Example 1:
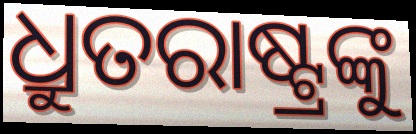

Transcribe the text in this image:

ଧ୍ରୁତରାଷ୍ଟ୍ରଙ୍କୁ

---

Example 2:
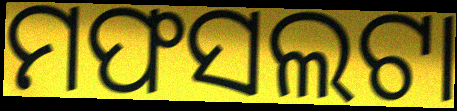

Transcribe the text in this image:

ମଫସଲଟା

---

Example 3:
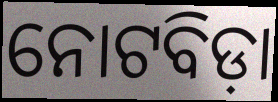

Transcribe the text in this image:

ନୋଟବିଡ଼ା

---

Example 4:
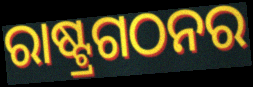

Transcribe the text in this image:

ରାଷ୍ଟ୍ରଗଠନର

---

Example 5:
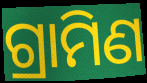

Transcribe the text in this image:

ଗ୍ରାମିଣ